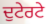
ਦੁਟੇਰਟੇ